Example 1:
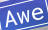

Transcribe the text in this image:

Awe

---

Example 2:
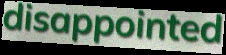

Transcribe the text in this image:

disappointed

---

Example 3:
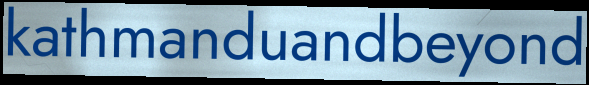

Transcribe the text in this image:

kathmanduandbeyond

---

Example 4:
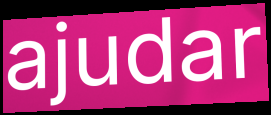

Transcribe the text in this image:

ajudar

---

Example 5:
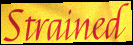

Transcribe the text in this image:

Strained